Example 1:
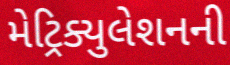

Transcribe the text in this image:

મેટ્રિક્યુલેશનની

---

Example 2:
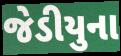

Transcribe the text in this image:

જેડીયુના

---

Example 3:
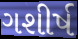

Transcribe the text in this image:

ગશીર્ષ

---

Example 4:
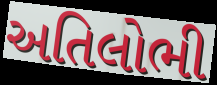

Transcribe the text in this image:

અતિલોભી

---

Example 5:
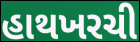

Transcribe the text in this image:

હાથખરચી